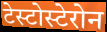
टेस्‍टोस्‍टेरोन